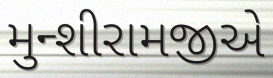
મુન્શીરામજીએ